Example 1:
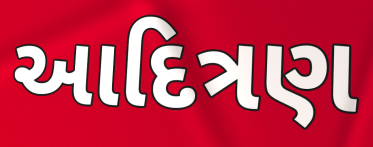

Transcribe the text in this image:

આદિત્રણ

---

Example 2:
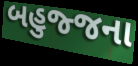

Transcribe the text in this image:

બહુજ્જના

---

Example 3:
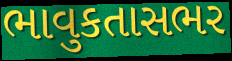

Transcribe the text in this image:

ભાવુકતાસભર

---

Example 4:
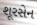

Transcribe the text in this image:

શૂરસેન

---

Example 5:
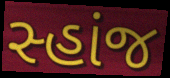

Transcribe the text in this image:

સ્હાંજ